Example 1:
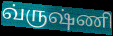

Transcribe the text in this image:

வ்ருஷ்ணி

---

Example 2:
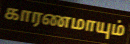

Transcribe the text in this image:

காரணமாயும்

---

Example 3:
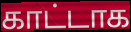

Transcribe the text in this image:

காட்டாக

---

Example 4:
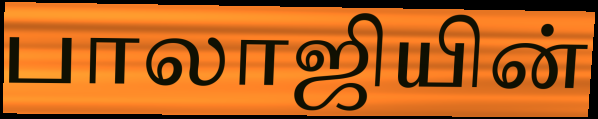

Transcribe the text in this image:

பாலாஜியின்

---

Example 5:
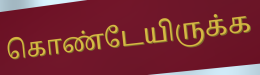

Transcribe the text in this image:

கொண்டேயிருக்க